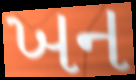
ખન